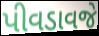
પીવડાવજે